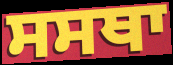
ਸਸਥਾ